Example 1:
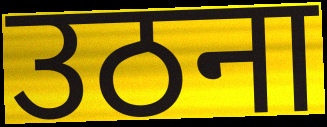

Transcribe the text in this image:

उठना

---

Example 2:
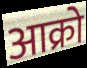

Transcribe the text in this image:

आक्रो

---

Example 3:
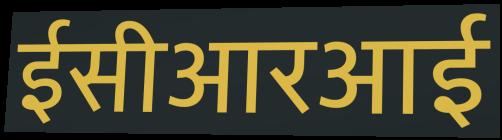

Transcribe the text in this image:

ईसीआरआई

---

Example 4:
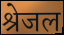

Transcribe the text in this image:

श्रेजल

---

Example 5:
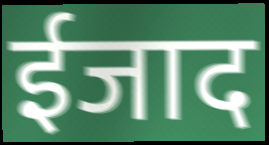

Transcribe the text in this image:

ईजाद